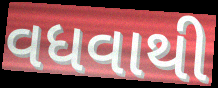
વધવાથી